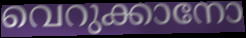
വെറുക്കാനോ